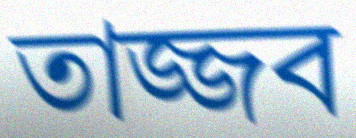
তাজ্জব